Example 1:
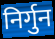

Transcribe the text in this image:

निर्गुन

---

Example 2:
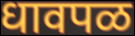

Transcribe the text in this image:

धावपळ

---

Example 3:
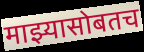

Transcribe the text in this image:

माझ्यासोबतच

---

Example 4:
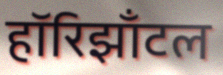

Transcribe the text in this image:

हॉरिझाँटल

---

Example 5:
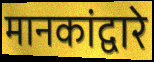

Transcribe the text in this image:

मानकांद्वारे